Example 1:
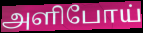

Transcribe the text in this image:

அளிபோய்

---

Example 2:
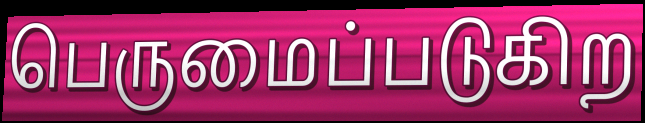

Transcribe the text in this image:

பெருமைப்படுகிற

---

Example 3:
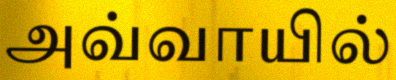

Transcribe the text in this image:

அவ்வாயில்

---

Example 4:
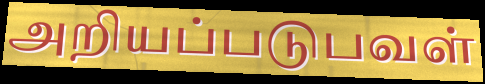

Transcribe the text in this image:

அறியப்படுபவள்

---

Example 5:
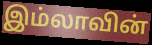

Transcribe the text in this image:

இம்லாவின்